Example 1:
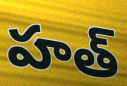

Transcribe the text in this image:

హత్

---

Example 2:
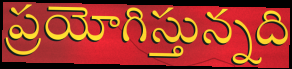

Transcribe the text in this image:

ప్రయోగిస్తున్నది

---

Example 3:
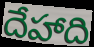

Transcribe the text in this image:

దేహాది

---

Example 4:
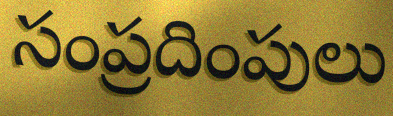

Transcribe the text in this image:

సంప్రదింపులు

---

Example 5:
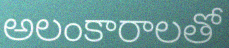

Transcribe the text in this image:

అలంకారాలతో